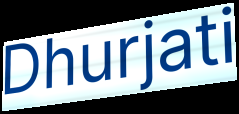
Dhurjati